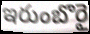
ఇరుంబొరై